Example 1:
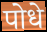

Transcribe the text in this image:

पोधे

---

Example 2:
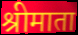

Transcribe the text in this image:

श्रीमाता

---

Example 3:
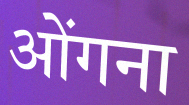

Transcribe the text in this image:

ओंगना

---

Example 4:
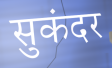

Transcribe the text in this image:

सुकंदर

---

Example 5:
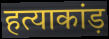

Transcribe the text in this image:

हत्याकांड़